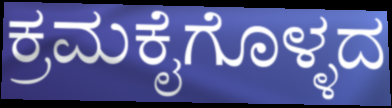
ಕ್ರಮಕೈಗೊಳ್ಳದ